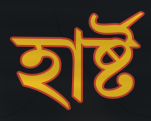
হাৰ্ষ্ট